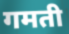
गमती